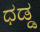
ಧಡ್ಡ